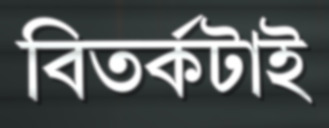
বিতর্কটাই